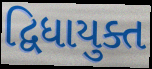
દ્વિધાયુક્ત